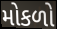
મોકળો